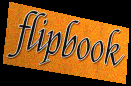
flipbook